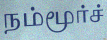
நம்மூர்ச்